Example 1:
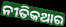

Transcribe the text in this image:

ନୀତିକଥାର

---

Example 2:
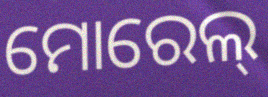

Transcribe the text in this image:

ମୋରେଲ୍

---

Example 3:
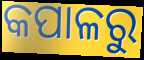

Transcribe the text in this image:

କପାଳରୁ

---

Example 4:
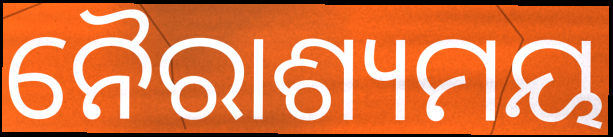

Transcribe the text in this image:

ନୈରାଶ୍ୟମୟ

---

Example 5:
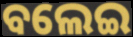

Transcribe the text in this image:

ବଲେଇ